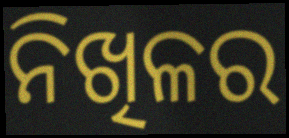
ନିଖିଳର